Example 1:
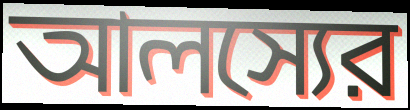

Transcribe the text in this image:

আলস্যের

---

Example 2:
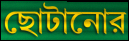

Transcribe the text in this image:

ছোটানোর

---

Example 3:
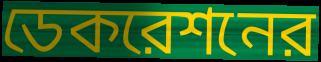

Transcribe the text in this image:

ডেকরেশনের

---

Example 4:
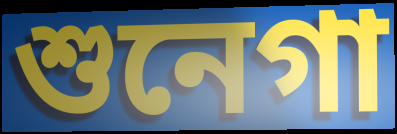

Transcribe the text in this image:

শুনেগা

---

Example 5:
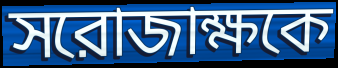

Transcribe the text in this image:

সরোজাক্ষকে